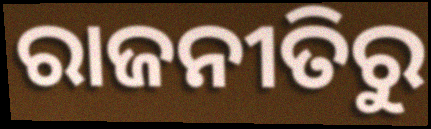
ରାଜନୀତିରୁ